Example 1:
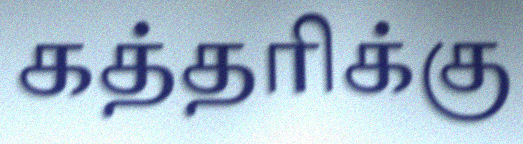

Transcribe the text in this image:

கத்தரிக்கு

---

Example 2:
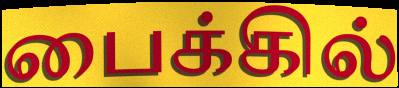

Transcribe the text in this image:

பைக்கில்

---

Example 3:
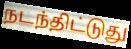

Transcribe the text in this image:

நடந்திட்டுது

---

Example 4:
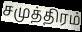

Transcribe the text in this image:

சமுத்திரம்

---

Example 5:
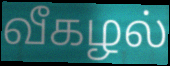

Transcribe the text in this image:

வீகழல்